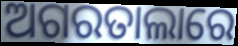
ଅଗରତାଲାରେ